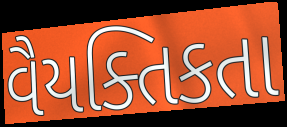
વૈયક્તિકતા